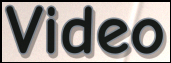
Video